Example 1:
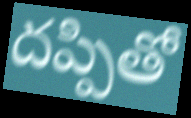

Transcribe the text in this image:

దప్పితో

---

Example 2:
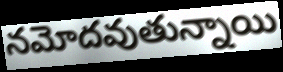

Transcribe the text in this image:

నమోదవుతున్నాయి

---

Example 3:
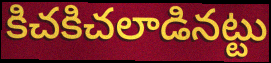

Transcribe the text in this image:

కిచకిచలాడినట్టు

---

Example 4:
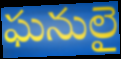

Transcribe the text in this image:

ఘనులై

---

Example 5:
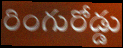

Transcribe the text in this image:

రింగురోడ్డు